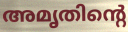
അമൃതിന്റെ